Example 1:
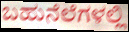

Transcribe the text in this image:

ಬಹುನೆಲೆಗಳಲ್ಲಿ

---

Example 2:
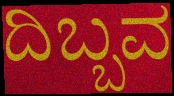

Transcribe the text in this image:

ದಿಬ್ಬವ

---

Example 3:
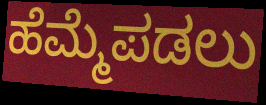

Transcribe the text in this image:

ಹೆಮ್ಮೆಪಡಲು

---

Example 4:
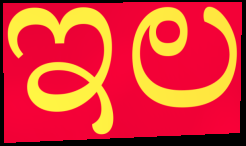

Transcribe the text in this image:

ಇಲ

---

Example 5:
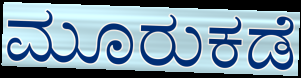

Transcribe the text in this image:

ಮೂರುಕಡೆ